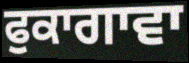
ਫੁਕਾਗਾਵਾ